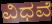
ವಿಧವೆ